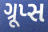
ગ્રૂપ્સ